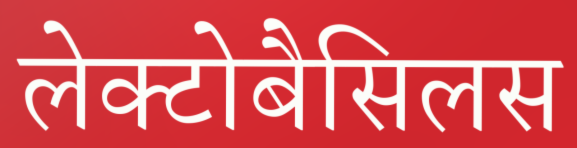
लेक्टोबैसिलस